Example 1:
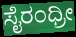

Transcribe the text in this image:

ಸೈರಂಧ್ರೀ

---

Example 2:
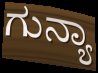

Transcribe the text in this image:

ಗುನ್ಯಾ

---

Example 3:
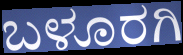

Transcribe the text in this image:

ಬಳೂರಗಿ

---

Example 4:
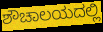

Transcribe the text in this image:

ಶೌಚಾಲಯದಲ್ಲಿ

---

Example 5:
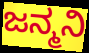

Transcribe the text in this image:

ಜನ್ಮನಿ